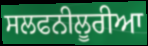
ਸਲਫਨੀਲੂਰੀਆ